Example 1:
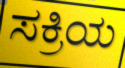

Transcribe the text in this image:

ಸಕ್ರಿಯ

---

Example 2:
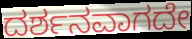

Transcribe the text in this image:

ದರ್ಶನವಾಗದೇ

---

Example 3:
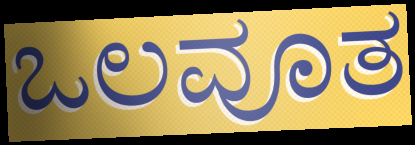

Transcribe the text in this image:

ಒಲವೂತ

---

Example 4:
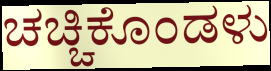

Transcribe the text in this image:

ಚಚ್ಚಿಕೊಂಡಳು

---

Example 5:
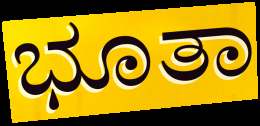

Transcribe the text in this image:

ಭೂತಾ